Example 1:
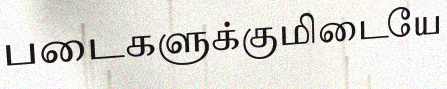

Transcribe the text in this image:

படைகளுக்குமிடையே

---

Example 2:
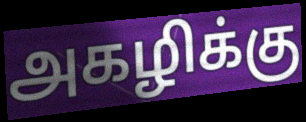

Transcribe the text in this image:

அகழிக்கு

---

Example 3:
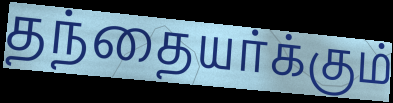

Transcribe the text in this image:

தந்தையர்க்கும்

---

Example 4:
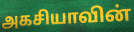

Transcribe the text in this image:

அகசியாவின்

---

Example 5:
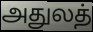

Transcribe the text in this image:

அதுலத்